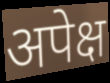
अपेक्ष